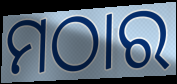
ମଠାର